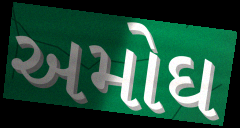
અમોઘ